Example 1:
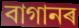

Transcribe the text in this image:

বাগানৰ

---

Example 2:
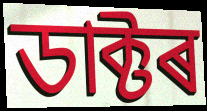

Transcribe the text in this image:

ডাক্টৰ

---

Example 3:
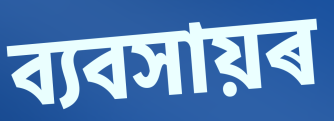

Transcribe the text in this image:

ব্যবসায়ৰ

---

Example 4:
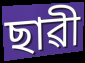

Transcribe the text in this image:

ছাৱী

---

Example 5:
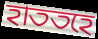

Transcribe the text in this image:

হাততহে